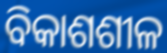
ବିକାଶଶୀଳ